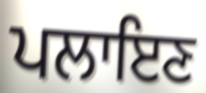
ਪਲਾਇਣ